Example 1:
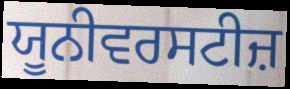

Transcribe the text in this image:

ਯੂਨੀਵਰਸਟੀਜ਼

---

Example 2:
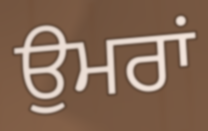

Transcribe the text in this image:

ਉੁਮਰਾਂ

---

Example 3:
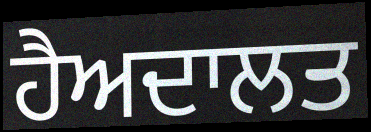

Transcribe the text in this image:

ਹੈਅਦਾਲਤ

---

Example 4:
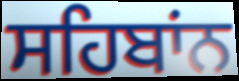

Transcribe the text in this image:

ਸਹਿਬਾਂਨ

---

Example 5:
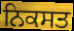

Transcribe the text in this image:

ਨਿਕਸਤ